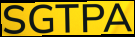
SGTPA